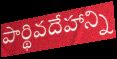
పార్థివదేహాన్ని